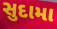
સુદામા